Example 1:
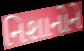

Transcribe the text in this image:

નિશાનોને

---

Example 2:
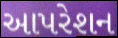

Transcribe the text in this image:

આપરેશન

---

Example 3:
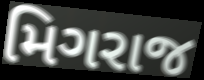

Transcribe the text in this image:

મિગરાજ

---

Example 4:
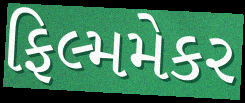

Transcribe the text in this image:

ફિલ્મમેકર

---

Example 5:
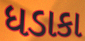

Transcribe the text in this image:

ધડાકા